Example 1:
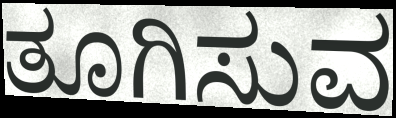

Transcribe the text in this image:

ತೂಗಿಸುವ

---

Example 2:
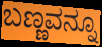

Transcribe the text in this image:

ಬಣ್ಣವನ್ನೂ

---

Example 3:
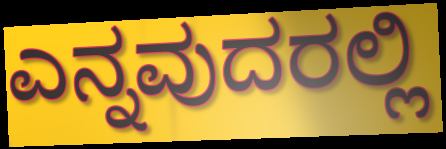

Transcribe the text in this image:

ಎನ್ನವುದರಲ್ಲಿ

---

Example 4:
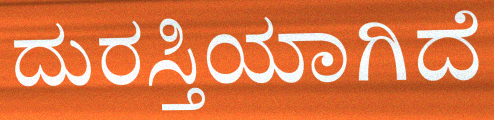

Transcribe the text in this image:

ದುರಸ್ತಿಯಾಗಿದೆ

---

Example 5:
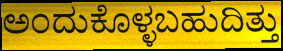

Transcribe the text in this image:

ಅಂದುಕೊಳ್ಳಬಹುದಿತ್ತು